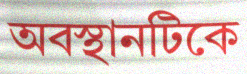
অবস্থানটিকে